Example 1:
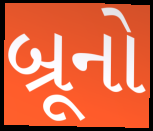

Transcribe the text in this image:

બ્રૂનો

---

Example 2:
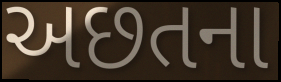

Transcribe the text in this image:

અછતના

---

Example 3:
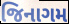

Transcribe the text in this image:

જિનાગમ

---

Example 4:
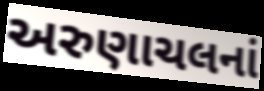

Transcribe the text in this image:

અરુણાચલનાં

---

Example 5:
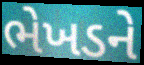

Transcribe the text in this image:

ભેખડને